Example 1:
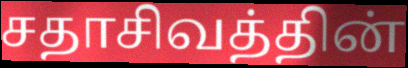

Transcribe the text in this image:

சதாசிவத்தின்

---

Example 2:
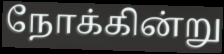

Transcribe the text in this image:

நோக்கின்று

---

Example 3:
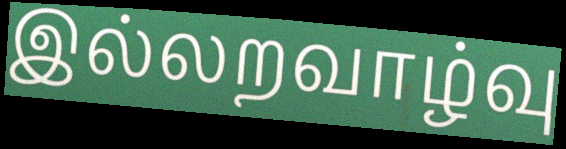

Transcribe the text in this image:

இல்லறவாழ்வு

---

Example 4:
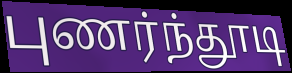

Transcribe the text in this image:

புணர்ந்தூடி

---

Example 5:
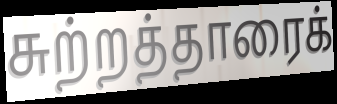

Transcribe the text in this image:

சுற்றத்தாரைக்